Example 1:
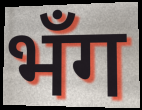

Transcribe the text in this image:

भँग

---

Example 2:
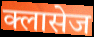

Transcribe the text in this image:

क्लासेज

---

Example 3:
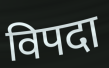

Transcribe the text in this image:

विपदा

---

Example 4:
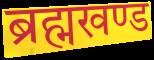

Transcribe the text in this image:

ब्रह्मखण्ड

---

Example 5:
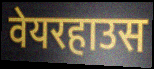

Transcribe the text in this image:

वेयरहाउस